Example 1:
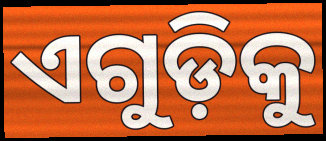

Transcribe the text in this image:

ଏଗୁଡ଼ିକୁ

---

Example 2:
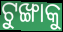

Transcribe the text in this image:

ଟୁଙ୍ଖାକୁ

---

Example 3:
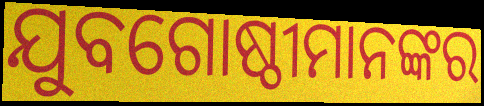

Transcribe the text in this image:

ଯୁବଗୋଷ୍ଠୀମାନଙ୍କର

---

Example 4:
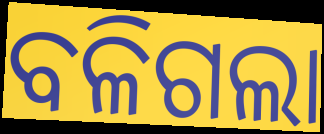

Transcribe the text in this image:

ବଳିଗଲା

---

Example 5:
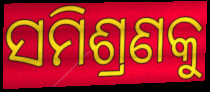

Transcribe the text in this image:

ସମିଶ୍ରଣକୁ